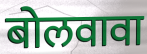
बोलवावा